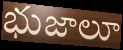
భుజాలూ